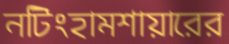
নটিংহামশায়ারের